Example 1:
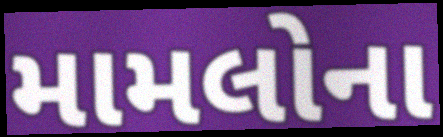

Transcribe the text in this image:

મામલોના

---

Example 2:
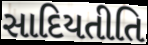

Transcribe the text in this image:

સાદિયતીતિ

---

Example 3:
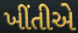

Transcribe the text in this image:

ખીંતીએ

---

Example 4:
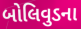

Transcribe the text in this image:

બોલિવુડના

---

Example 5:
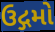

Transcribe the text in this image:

ઉદ્ગમો